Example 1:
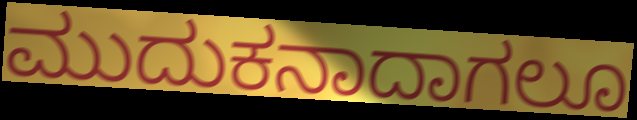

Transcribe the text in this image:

ಮುದುಕನಾದಾಗಲೂ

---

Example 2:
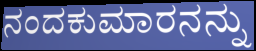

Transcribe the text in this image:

ನಂದಕುಮಾರನನ್ನು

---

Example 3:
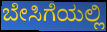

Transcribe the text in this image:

ಬೇಸಿಗೆಯಲ್ಲಿ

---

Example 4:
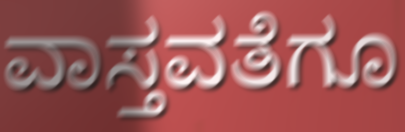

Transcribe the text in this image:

ವಾಸ್ತವತೆಗೂ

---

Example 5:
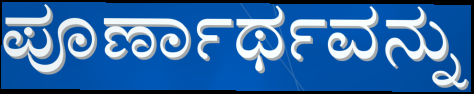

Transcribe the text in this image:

ಪೂರ್ಣಾರ್ಥವನ್ನು